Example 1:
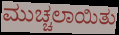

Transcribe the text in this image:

ಮುಚ್ಚಲಾಯಿತು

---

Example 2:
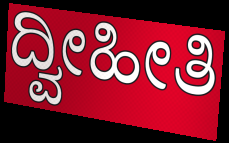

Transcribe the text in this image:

ದ್ವೀಹೀತಿ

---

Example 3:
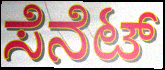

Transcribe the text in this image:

ಸೆನೆಟ್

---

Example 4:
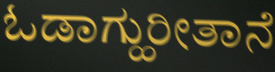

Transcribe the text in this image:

ಓಡಾಗ್ಹುರೀತಾನೆ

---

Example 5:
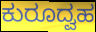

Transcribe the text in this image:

ಕುರೂದ್ವಹ